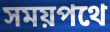
সময়পথে